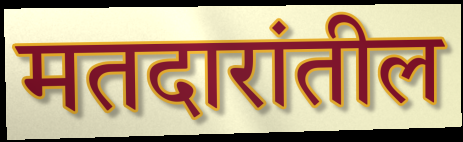
मतदारांतील